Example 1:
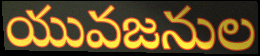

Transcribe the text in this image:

యువజనుల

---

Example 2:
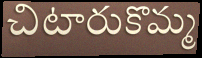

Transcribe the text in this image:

చిటారుకొమ్మ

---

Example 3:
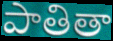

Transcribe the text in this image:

పాతితా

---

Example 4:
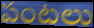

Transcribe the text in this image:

పంటలు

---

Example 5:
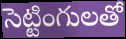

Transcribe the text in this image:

సెట్టింగులతో